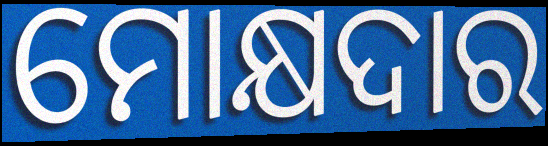
ମୋକ୍ଷଦାର